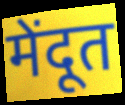
मेंदूत